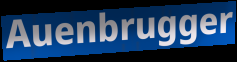
Auenbrugger